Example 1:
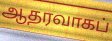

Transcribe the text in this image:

ஆதரவாகப்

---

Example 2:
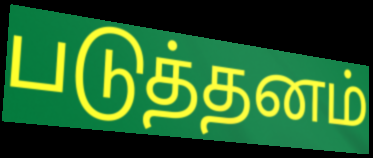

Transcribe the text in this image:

படுத்தனம்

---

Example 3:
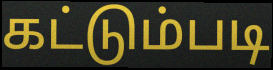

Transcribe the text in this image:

கட்டும்படி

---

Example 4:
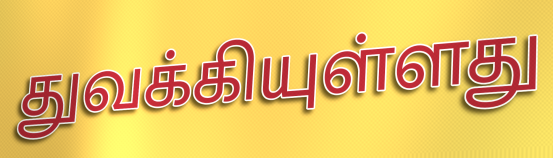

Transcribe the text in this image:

துவக்கியுள்ளது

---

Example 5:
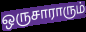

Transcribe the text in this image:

ஒருசாராரும்